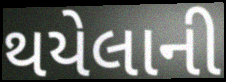
થયેલાની